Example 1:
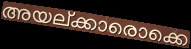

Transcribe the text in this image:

അയല്ക്കാരൊക്കെ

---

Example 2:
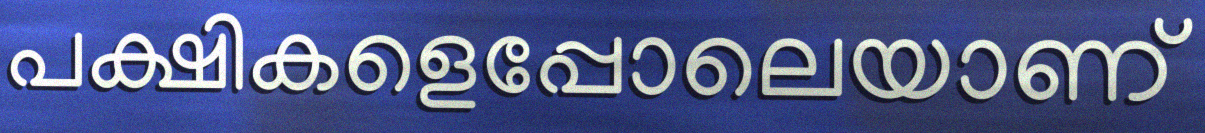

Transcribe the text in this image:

പക്ഷികളെപ്പോലെയാണ്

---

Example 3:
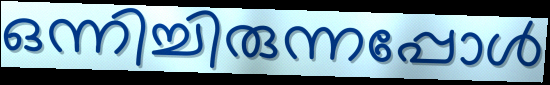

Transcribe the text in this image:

ഒന്നിച്ചിരുന്നപ്പോൾ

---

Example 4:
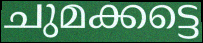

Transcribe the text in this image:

ചുമക്കട്ടെ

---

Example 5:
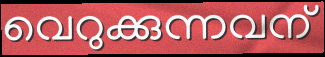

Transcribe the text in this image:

വെറുക്കുന്നവന്